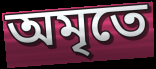
অমৃতে